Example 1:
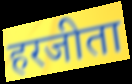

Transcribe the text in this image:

हरजीता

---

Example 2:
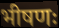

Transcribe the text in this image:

भीषणः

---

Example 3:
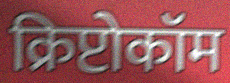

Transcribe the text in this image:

क्रिप्टोकॉम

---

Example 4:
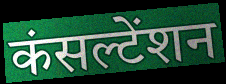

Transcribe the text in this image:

कंसल्टेंशन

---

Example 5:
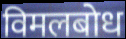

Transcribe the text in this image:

विमलबोध